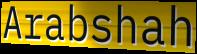
Arabshah